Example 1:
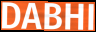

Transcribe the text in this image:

DABHI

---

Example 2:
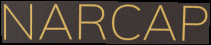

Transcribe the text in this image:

NARCAP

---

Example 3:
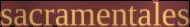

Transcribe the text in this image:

sacramentales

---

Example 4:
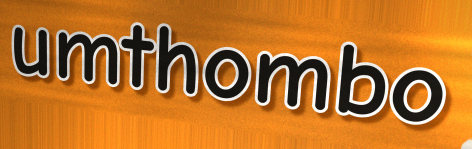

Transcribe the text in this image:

umthombo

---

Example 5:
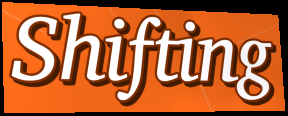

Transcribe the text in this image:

Shifting